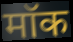
मॉक